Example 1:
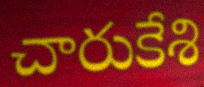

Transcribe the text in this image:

చారుకేశి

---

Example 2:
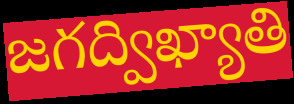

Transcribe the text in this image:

జగద్విఖ్యాతి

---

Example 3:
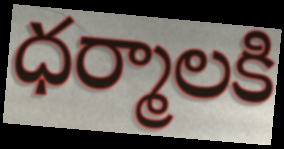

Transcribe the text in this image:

ధర్మాలకి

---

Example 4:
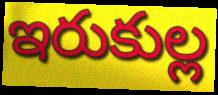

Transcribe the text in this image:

ఇరుకుల్ల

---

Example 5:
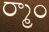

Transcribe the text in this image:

ర్మాం